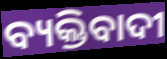
ବ୍ୟକ୍ତିବାଦୀ